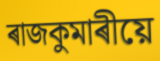
ৰাজকুমাৰীয়ে